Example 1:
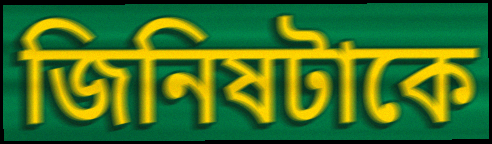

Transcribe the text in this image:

জিনিষটাকে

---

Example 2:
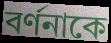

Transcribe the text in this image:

বর্ণনাকে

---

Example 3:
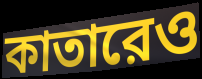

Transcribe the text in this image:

কাতারেও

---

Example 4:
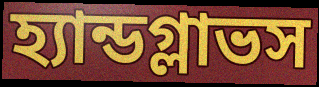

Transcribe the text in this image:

হ্যান্ডগ্লাভস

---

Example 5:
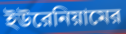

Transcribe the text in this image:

ইউরেনিয়ামের